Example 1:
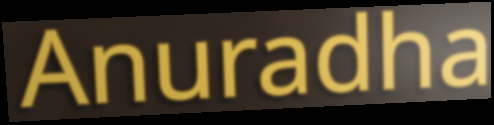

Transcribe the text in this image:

Anuradha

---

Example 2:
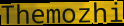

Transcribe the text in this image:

Themozhi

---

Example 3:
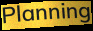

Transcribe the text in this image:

Planning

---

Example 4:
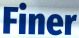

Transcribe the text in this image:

Finer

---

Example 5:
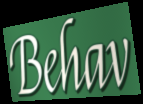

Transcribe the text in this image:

Behav